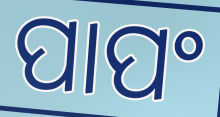
ପାପଂ